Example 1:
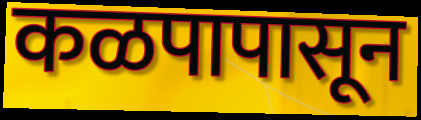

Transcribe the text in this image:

कळपापासून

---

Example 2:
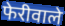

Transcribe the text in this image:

फेरीवाले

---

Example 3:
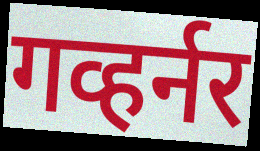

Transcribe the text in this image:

गव्हर्नर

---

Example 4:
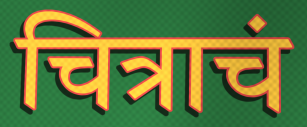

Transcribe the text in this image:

चित्राचं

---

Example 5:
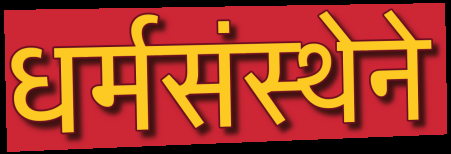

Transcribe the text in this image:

धर्मसंस्थेने